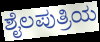
ಶೈಲಪುತ್ರಿಯ